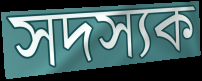
সদস্যক